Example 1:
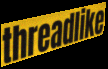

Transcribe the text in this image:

threadlike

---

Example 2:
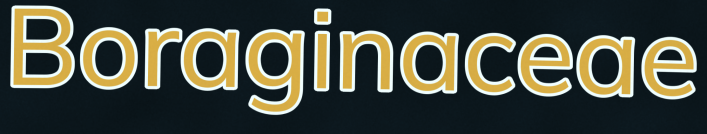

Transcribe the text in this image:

Boraginaceae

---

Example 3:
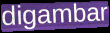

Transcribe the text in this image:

digambar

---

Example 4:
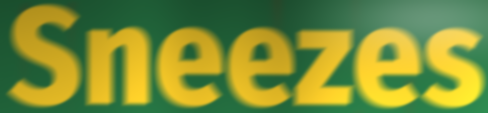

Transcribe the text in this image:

Sneezes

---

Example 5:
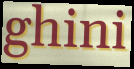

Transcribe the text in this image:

ghini